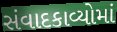
સંવાદકાવ્યોમાં